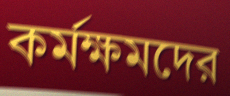
কর্মক্ষমদের